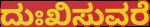
ದುಃಖಿಸುವರೆ